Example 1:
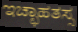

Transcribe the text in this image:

ಇಚ್ಛಾಹತಸ್ಸ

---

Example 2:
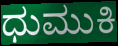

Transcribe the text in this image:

ಧುಮುಕಿ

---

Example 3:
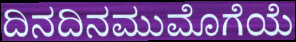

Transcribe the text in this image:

ದಿನದಿನಮುಮೊಗೆಯೆ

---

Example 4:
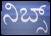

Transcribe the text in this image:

ನಿಬ್ಸ್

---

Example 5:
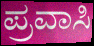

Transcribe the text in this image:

ಪ್ರವಾಸಿ